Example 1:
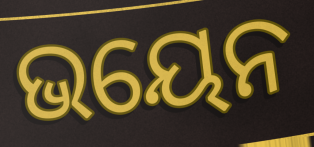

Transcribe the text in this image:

ଭୟେନ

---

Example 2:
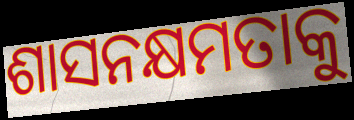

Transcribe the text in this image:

ଶାସନକ୍ଷମତାକୁ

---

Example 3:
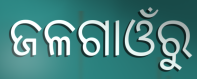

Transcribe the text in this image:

ଜଳଗାଓଁରୁ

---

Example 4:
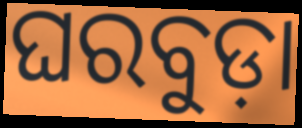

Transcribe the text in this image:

ଘରବୁଡ଼ା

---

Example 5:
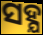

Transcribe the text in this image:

ସହ୍ଯ